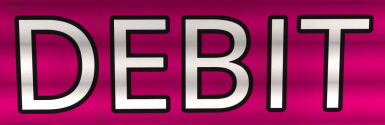
DEBIT